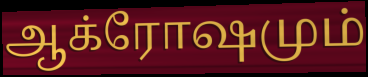
ஆக்ரோஷமும்